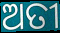
ଅତୀ